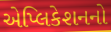
એપ્લિકેશનનો